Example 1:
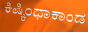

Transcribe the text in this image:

ಕಿಷ್ಕಿಂಧಾಕಾಂಡ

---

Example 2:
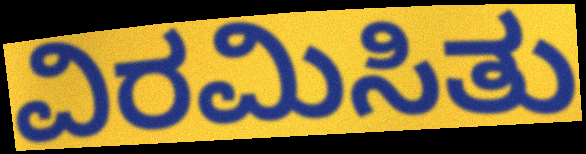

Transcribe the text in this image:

ವಿರಮಿಸಿತು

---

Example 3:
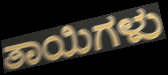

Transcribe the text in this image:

ತಾಯಿಗಳು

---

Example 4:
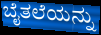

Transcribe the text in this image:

ಬೈತಲೆಯನ್ನು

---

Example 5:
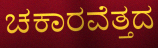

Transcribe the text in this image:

ಚಕಾರವೆತ್ತದ